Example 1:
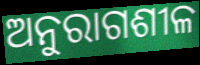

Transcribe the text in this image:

ଅନୁରାଗଶୀଳ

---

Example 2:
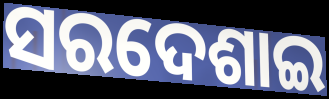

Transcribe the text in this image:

ସରଦେଶାଇ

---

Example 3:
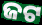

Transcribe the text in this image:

ଜଟ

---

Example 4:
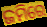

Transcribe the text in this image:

ଜମିରେ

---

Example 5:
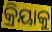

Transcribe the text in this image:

କ୍ରିୟାକୁ